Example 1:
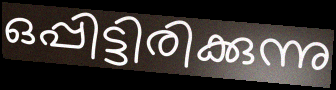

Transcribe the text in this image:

ഒപ്പിട്ടിരിക്കുന്നു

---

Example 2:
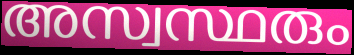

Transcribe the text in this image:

അസ്വസ്ഥരും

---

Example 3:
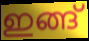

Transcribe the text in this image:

ഇങ്ങ്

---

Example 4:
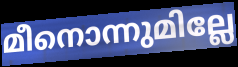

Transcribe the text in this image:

മീനൊന്നുമില്ലേ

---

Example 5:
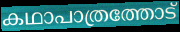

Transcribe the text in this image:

കഥാപാത്രത്തോട്